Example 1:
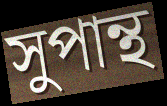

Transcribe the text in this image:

সুপান্থ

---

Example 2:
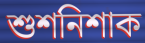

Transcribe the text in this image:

শুশনিশাক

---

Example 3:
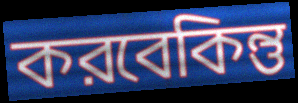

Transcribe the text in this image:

করবেকিন্তু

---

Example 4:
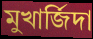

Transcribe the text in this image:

মুখার্জিদা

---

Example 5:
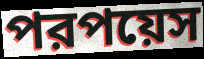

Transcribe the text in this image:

পরপয়েস